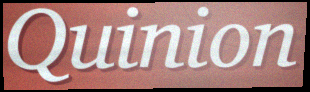
Quinion